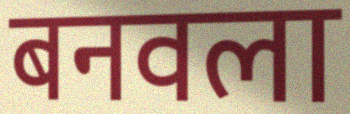
बनवला